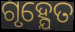
ଗୃହ୍ଯେତ